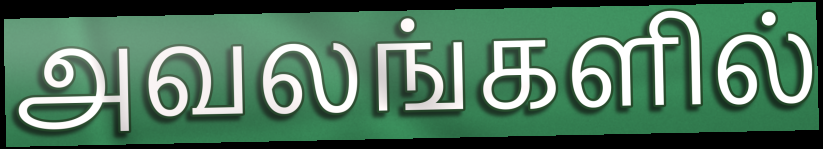
அவலங்களில்